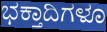
ಭಕ್ತಾದಿಗಳೂ